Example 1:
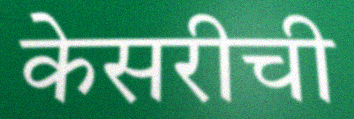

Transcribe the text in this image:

केसरीची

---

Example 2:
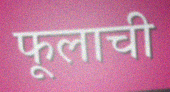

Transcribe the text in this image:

फूलाची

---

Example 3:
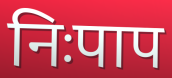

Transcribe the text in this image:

निःपाप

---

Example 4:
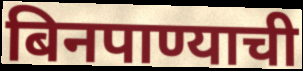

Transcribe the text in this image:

बिनपाण्याची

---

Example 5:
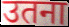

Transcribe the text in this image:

उतना